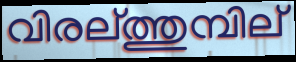
വിരല്ത്തുമ്പില്